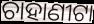
ଚାହାଣୀଟା